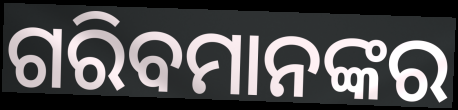
ଗରିବମାନଙ୍କର